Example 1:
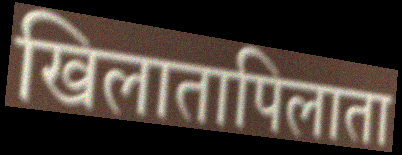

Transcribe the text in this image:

खिलातापिलाता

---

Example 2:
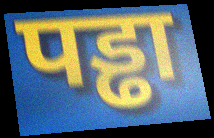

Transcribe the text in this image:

पड्ढा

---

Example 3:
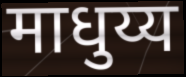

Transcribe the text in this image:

माधुय्य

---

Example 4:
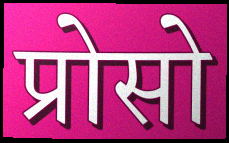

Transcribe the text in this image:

प्रोसो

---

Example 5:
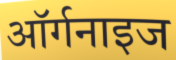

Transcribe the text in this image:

ऑर्गनाइज